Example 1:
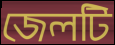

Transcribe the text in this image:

জেলটি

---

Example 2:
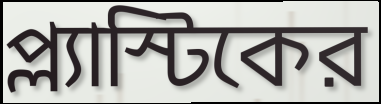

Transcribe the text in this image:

প্ল্যাস্টিকের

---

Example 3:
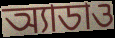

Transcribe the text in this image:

অ্যাডাও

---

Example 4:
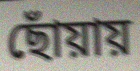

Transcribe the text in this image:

ছোঁয়ায়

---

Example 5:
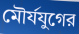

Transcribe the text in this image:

মৌর্যযুগের